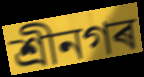
শ্ৰীনগৰ